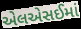
એલએસઈમાં